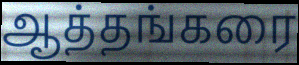
ஆத்தங்கரை